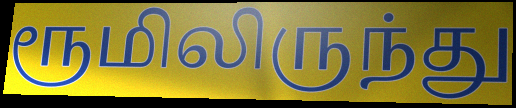
ரூமிலிருந்து